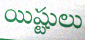
యిష్టులు